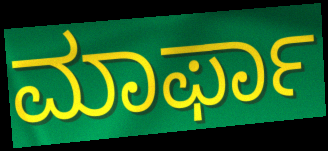
ಮಾರ್ಫಾ